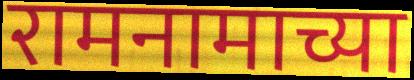
रामनामाच्या